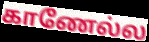
காணேல்ல